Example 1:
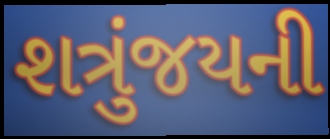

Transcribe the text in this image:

શત્રુંજયની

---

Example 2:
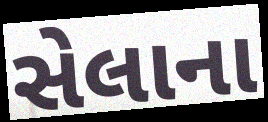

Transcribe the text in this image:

સેલાના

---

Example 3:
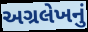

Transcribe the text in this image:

અગ્રલેખનું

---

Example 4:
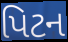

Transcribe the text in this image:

પિટન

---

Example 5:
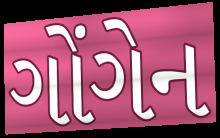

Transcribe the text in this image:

ગોંગેન